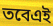
তবেএই